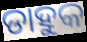
ଡାହୁକ